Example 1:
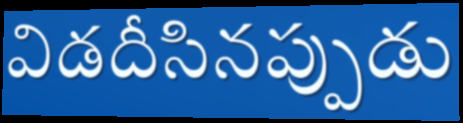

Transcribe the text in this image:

విడదీసినప్పుడు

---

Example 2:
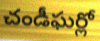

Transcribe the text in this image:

చండీఘర్లో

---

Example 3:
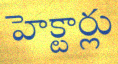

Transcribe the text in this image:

హెక్టార్లు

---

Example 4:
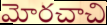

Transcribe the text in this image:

మోరచాచి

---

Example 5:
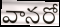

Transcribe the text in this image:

వానరో